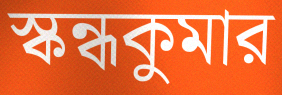
স্কন্ধকুমার